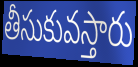
తీసుకువస్తారు